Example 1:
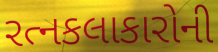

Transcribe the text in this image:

રત્નકલાકારોની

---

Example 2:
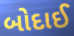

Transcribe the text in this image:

બોદાઈ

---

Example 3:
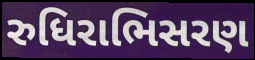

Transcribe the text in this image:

રુધિરાભિસરણ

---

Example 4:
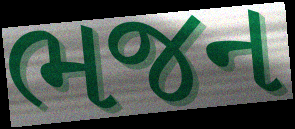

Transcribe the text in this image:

ભજન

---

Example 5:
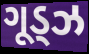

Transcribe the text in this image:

ગૂડ્ઝ